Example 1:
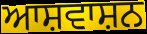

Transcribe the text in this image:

ਆਸ਼ਵਾਸ਼ਨ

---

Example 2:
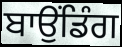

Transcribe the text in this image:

ਬਾਉਂਡਿੰਗ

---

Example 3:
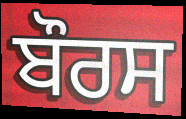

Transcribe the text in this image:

ਬੌਰਸ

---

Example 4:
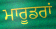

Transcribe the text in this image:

ਮਾਰੂਡਰਾਂ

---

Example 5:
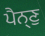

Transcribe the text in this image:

ਪੈਨ੍ਣੁ